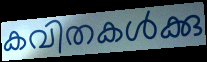
കവിതകൾക്കു